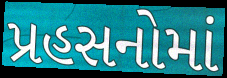
પ્રહસનોમાં